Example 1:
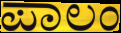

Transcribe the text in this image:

ಪಾಲಂ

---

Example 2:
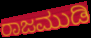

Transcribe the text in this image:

ರಾಜಮುಡಿ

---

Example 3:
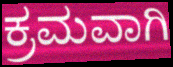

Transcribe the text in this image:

ಕ್ರಮವಾಗಿ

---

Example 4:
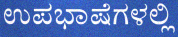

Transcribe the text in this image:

ಉಪಭಾಷೆಗಳಲ್ಲಿ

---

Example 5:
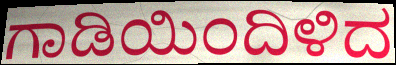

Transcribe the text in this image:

ಗಾಡಿಯಿಂದಿಳಿದ